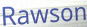
Rawson